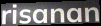
risanan